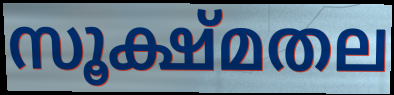
സൂക്ഷ്മതല